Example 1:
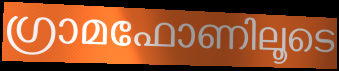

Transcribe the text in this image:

ഗ്രാമഫോണിലൂടെ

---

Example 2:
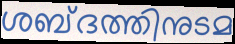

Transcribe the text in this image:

ശബ്ദത്തിനുടമ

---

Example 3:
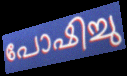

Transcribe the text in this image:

പോഷിച്ചു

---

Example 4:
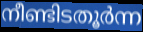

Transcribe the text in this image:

നീണ്ടിടതൂർന്ന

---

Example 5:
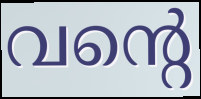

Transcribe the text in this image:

വന്റെ